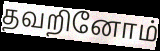
தவறினோம்